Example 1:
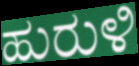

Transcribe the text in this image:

ಹುರುಳಿ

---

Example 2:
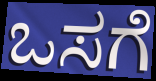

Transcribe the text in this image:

ಒಸಗೆ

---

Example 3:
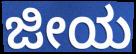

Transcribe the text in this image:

ಜೀಯ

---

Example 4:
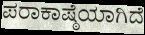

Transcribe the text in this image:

ಪರಾಕಾಷ್ಠೆಯಾಗಿದೆ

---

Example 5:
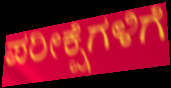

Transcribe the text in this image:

ಪರೀಕ್ಷೆಗಳಿಗೆ